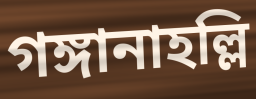
গঙ্গানাহল্লি